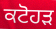
ਕਟੋਹੜ